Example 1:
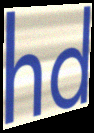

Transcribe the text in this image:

hd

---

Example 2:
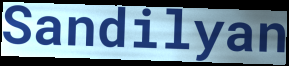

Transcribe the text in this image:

Sandilyan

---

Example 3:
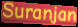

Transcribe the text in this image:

Suranjan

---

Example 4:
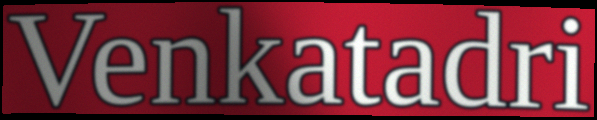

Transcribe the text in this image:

Venkatadri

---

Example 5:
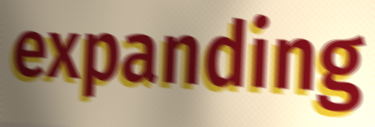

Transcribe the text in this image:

expanding